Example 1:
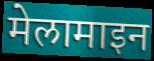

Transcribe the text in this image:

मेलामाइन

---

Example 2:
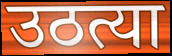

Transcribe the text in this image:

उठत्या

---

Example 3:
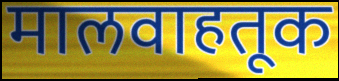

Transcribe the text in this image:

मालवाहतूक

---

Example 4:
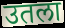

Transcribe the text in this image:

उतला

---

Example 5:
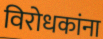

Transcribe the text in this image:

विरोधकांना